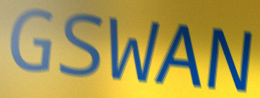
GSWAN